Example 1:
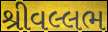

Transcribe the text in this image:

શ્રીવલ્લભ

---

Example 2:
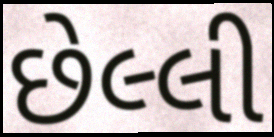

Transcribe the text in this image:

છેલ્લી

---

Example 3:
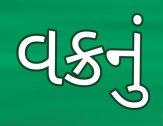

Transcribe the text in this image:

વક્રનું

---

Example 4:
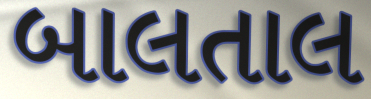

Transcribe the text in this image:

બાલતાલ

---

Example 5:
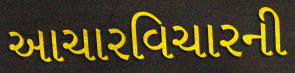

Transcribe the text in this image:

આચારવિચારની